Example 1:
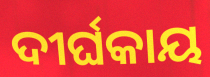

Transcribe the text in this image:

ଦୀର୍ଘକାୟ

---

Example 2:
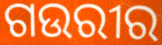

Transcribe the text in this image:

ଗଉରୀର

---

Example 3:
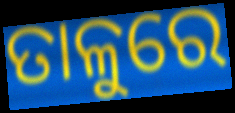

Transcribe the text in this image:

ତାଳୁରେ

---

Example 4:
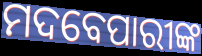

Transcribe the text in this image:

ମଦବେପାରୀଙ୍କ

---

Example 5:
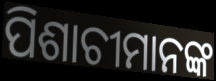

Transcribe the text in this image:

ପିଶାଚୀମାନଙ୍କ